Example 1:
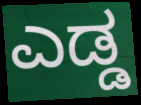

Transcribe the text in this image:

ಎಡ್ಡ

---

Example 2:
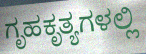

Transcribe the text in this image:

ಗೃಹಕೃತ್ಯಗಳಲ್ಲಿ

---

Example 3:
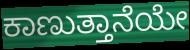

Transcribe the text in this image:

ಕಾಣುತ್ತಾನೆಯೇ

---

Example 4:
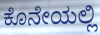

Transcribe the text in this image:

ಕೊನೇಯಲ್ಲಿ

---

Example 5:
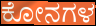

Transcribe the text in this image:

ಕೋನಗಳ